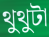
থুথুটা